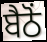
ਬੈਠੋਂ